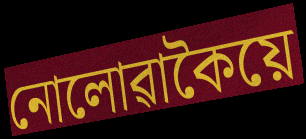
নোলোৱাকৈয়ে